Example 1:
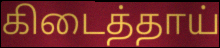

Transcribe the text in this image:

கிடைத்தாய்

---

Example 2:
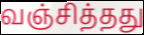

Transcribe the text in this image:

வஞ்சித்தது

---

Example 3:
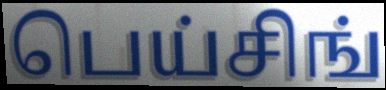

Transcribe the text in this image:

பெய்சிங்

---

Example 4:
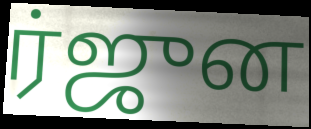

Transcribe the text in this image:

ர்ஜுன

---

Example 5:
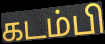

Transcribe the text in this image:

கடம்பி